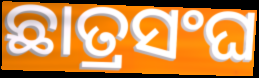
ଛାତ୍ରସଂଘ